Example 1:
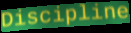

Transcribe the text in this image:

Discipline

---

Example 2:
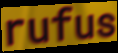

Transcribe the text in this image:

rufus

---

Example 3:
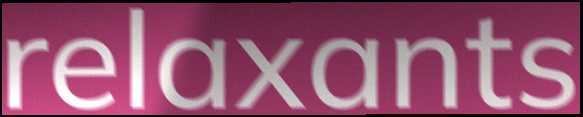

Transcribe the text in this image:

relaxants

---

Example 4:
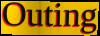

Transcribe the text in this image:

Outing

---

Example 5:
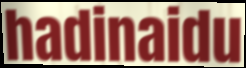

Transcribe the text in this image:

hadinaidu